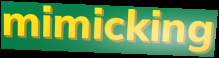
mimicking